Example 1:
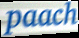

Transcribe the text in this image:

paach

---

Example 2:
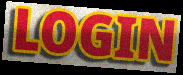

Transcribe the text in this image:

LOGIN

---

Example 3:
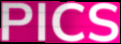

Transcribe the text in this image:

PICS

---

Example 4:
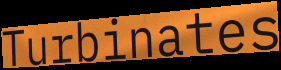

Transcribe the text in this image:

Turbinates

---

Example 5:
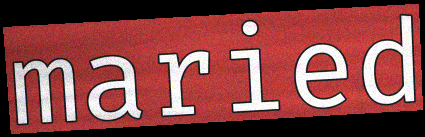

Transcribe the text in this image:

maried